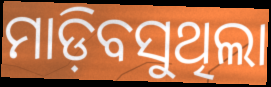
ମାଡ଼ିବସୁଥିଲା